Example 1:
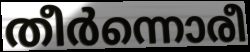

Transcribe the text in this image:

തീർന്നൊരീ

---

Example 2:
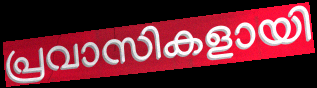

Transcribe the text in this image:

പ്രവാസികളായി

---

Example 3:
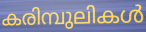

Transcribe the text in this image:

കരിമ്പുലികൾ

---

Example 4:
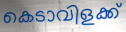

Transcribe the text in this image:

കെടാവിളക്ക്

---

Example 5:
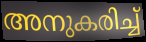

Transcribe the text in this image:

അനുകരിച്ച്